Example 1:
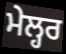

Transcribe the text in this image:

ਮੇਲ੍ਹਰ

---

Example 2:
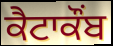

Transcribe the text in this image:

ਕੈਟਾਕੌਂਬ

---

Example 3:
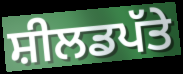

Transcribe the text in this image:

ਸ਼ੀਲਡਪੱਤੇ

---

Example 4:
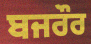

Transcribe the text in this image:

ਬਜਰੌਰ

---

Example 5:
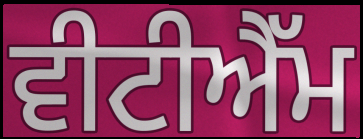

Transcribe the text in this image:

ਵੀਟੀਐੱਮ